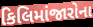
કિલિમાંજારોના